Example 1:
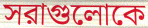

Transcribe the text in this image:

সরাগুলোকে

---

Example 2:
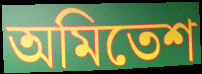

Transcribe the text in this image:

অমিতেশ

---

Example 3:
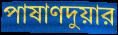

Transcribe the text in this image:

পাষাণদুয়ার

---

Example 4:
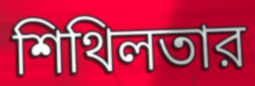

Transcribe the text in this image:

শিথিলতার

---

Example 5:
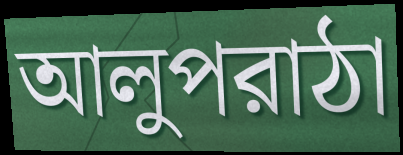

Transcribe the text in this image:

আলুপরাঠা